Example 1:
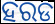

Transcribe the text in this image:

ହରଡ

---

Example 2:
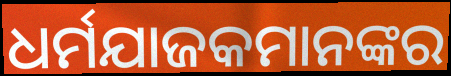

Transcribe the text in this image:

ଧର୍ମଯାଜକମାନଙ୍କର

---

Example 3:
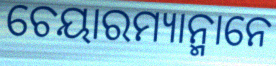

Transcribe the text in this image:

ଚେୟାରମ୍ୟାନ୍ମାନେ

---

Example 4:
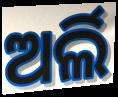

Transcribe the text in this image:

ଅର୍ଲି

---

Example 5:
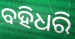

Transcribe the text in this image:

ବହିଧରି